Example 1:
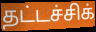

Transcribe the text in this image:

தட்டச்சிக்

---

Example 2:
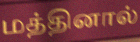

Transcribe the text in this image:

மத்தினால்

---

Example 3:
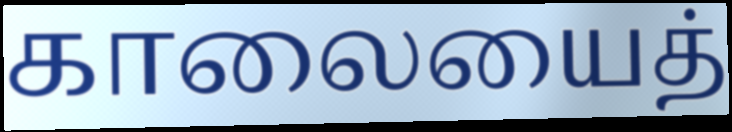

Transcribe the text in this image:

காலையைத்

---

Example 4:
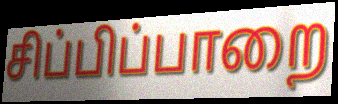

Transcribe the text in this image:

சிப்பிப்பாறை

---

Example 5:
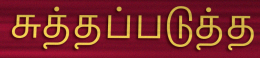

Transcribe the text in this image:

சுத்தப்படுத்த